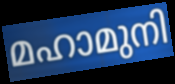
മഹാമുനി